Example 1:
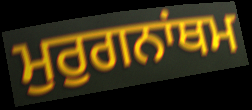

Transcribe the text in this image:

ਮੁਰੁਗਨਾਂਥਮ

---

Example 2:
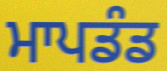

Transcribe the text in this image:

ਮਾਪਡੰਡ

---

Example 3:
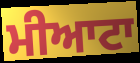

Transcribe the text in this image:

ਮੀਆਟਾ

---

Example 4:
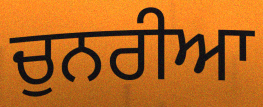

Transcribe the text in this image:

ਚੁਨਰੀਆ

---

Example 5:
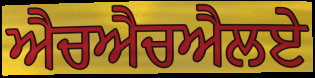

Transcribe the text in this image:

ਐਚਐਚਐਲਏ